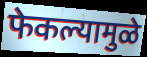
फेकल्यामुळे